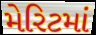
મેરિટમાં